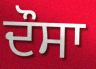
ਦੌਸਾ